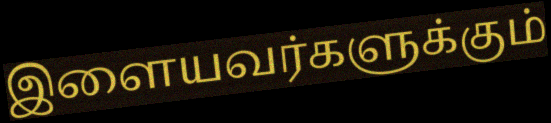
இளையவர்களுக்கும்